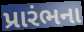
પ્રારંભના